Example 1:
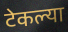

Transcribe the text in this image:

टेकल्या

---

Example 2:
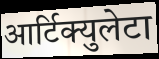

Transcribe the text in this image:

आर्टिक्युलेटा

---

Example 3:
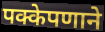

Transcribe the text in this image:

पक्केपणाने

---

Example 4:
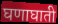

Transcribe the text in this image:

घणाघाती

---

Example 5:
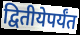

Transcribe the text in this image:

द्वितीयेपर्यंत